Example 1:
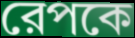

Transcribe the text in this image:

রেপকে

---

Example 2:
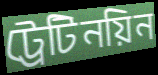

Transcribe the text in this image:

ট্রেটিনয়িন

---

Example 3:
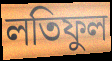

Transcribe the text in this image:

লতিফুল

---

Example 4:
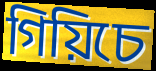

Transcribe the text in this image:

গিয়িচে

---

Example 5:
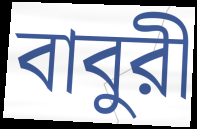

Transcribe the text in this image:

বাবুরী